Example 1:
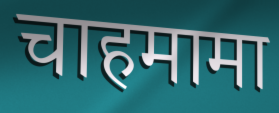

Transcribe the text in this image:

चाहमामा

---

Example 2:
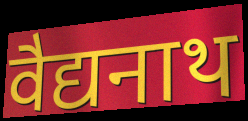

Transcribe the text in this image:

वैद्यनाथ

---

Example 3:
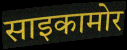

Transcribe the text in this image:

साइकामोर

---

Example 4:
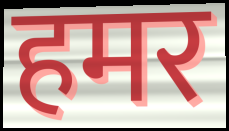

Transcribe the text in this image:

हमर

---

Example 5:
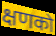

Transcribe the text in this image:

क्षणको